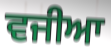
ਵਜੀਆ